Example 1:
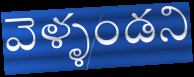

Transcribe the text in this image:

వెళ్ళండని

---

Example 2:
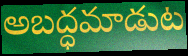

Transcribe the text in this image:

అబద్ధమాడుట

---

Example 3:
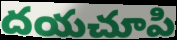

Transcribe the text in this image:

దయచూపి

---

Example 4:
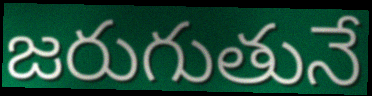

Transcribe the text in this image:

జరుగుతునే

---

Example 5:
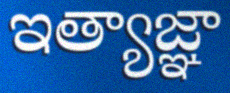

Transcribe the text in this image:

ఇత్యాజ్ఞా